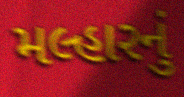
મલ્હારનું